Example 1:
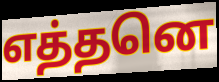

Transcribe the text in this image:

எத்தனெ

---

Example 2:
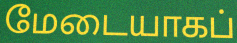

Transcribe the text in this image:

மேடையாகப்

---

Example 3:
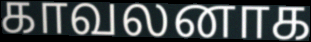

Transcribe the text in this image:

காவலனாக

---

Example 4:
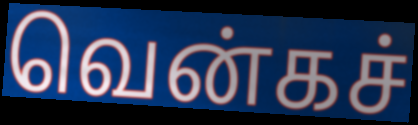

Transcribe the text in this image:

வென்கச்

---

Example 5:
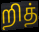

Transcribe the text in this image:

றித்